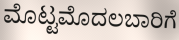
ಮೊಟ್ಟಮೊದಲಬಾರಿಗೆ